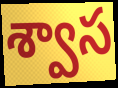
శ్వాస